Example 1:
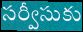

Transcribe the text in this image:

సర్వీసుకు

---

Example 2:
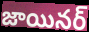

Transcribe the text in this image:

జాయినర్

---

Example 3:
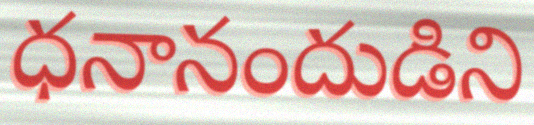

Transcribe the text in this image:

ధనానందుడిని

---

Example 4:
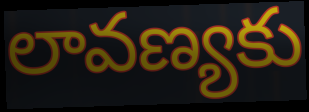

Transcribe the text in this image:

లావణ్యకు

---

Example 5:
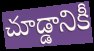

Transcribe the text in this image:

చూడ్డానికీ